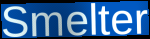
Smelter